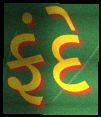
ફંદે